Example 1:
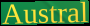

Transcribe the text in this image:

Austral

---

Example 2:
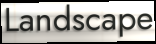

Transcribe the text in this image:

Landscape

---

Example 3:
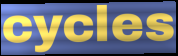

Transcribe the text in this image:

cycles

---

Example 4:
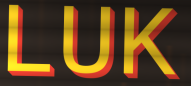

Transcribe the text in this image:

LUK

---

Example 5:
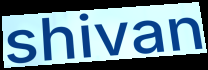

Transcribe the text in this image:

shivan